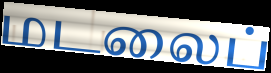
மடலைப்